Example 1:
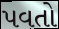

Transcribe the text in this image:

પવતો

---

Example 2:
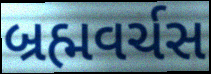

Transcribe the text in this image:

બ્રહ્મવર્ચસ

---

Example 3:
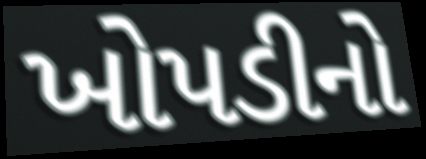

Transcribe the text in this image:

ખોપડીનો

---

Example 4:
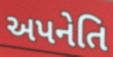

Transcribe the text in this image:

અપનેતિ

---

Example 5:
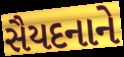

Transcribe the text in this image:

સૈયદનાને